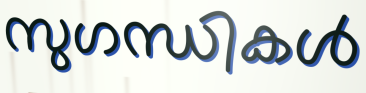
സുഗന്ധികൾ